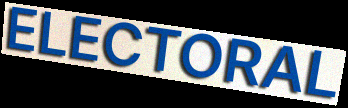
ELECTORAL